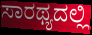
ಸಾರಥ್ಯದಲ್ಲಿ